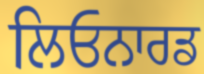
ਲਿਓਨਾਰਡ